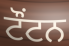
ਟੌਂਟਨ